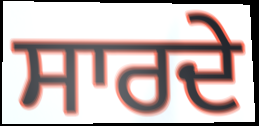
ਸਾਰਦੇ